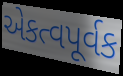
એકત્વપૂર્વક